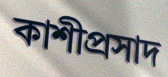
কাশীপ্রসাদ